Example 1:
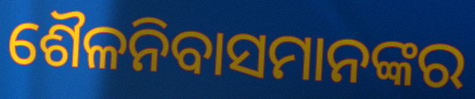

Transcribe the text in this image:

ଶୈଳନିବାସମାନଙ୍କର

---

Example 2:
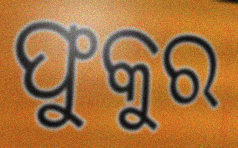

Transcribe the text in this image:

ଫୁକୁର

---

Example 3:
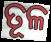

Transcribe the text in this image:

ତୂଳ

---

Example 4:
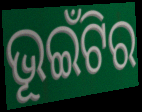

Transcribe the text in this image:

ଭୂଇଁଟିର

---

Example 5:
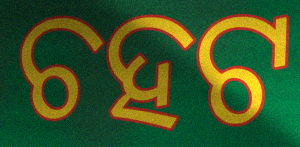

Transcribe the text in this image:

ଚହଟ